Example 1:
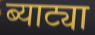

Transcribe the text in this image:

ब्याट्या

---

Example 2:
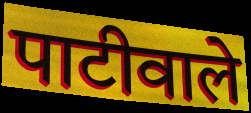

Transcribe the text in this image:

पाटीवाले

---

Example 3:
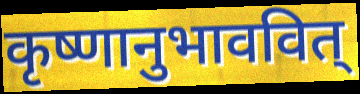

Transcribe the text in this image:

कृष्णानुभाववित्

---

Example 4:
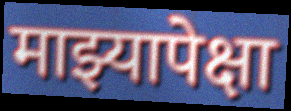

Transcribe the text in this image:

माझ्यापेक्षा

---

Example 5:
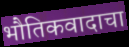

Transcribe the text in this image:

भौतिकवादाचा